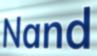
Nand